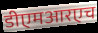
डीएमआरएच